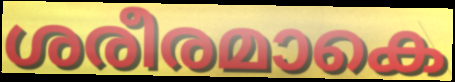
ശരീരമാകെ